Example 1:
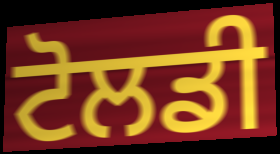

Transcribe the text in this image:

ਟੋਲਡੀ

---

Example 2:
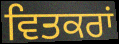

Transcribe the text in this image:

ਵਿਤਕਰਾਂ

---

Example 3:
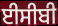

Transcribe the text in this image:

ਈਸੀਬੀ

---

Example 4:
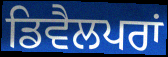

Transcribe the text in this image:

ਡਿਵੈਲਪਰਾਂ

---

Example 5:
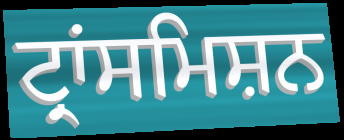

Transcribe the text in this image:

ਟ੍ਰਾਂਸਮਿਸ਼ਨ